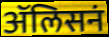
ॲलिसनं